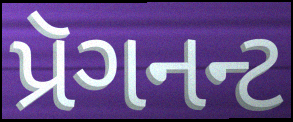
પ્રૅગનન્ટ